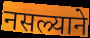
नसल्याने